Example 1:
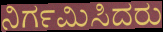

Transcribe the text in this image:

ನಿರ್ಗಮಿಸಿದರು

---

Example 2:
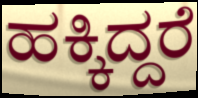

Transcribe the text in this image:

ಹಕ್ಕಿದ್ದರೆ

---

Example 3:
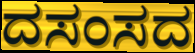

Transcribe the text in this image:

ದಸಂಸದ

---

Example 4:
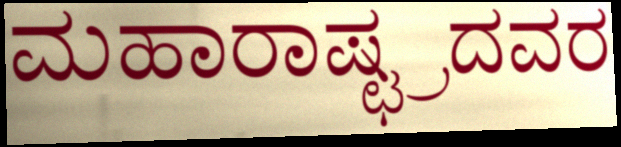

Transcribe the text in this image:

ಮಹಾರಾಷ್ಟ್ರದವರ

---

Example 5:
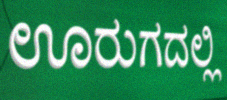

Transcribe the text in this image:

ಊರುಗದಲ್ಲಿ